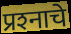
प्रश्‍नाचे